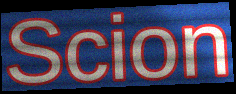
Scion